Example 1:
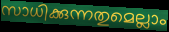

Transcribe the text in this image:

സാധിക്കുന്നതുമെല്ലാം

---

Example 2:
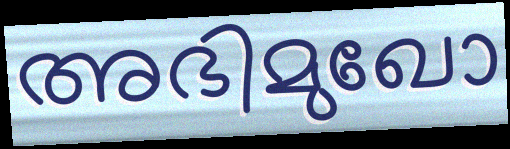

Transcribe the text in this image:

അഭിമുഖോ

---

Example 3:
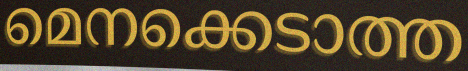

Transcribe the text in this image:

മെനക്കെടാത്ത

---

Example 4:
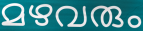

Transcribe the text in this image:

മഴവരും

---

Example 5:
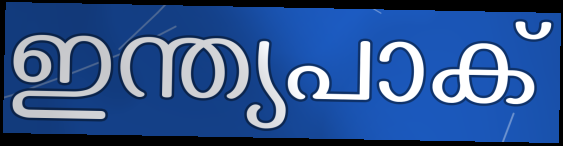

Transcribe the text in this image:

ഇന്ത്യപാക്